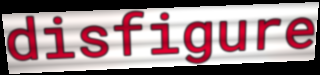
disfigure